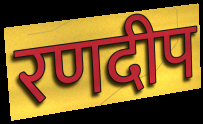
रणदीप